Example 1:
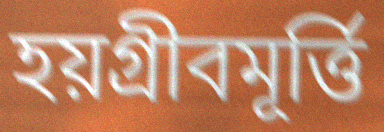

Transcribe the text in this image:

হয়গ্রীবমূর্ত্তি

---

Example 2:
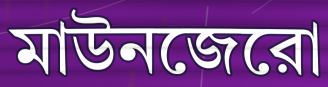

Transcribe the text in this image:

মাউনজেরো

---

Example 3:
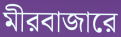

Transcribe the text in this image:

মীরবাজারে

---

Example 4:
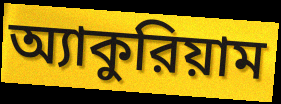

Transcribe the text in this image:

অ্যাকুরিয়াম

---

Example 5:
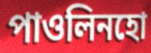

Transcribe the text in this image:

পাওলিনহো